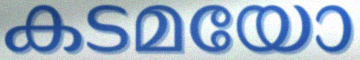
കടമയോ